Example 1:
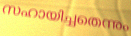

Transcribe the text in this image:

സഹായിച്ചതെന്നും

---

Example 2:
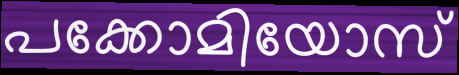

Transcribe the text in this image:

പക്കോമിയോസ്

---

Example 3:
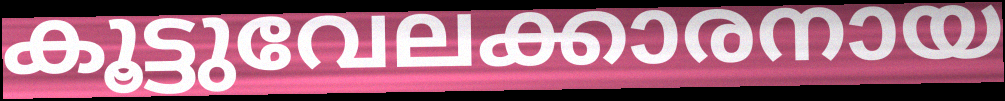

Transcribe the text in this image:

കൂട്ടുവേലക്കാരനായ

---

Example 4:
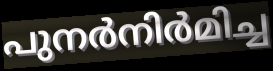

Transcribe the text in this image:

പുനർനിർമിച്ച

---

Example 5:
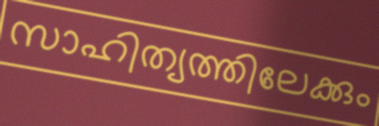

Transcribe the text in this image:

സാഹിത്യത്തിലേക്കും